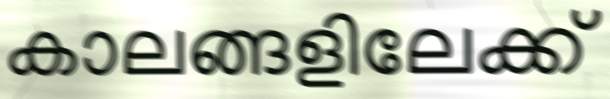
കാലങ്ങളിലേക്ക്